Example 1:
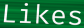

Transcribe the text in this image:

Likes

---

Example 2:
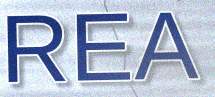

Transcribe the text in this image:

REA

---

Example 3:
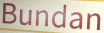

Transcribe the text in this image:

Bundan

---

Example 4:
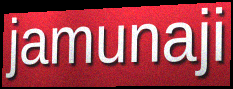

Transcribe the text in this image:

jamunaji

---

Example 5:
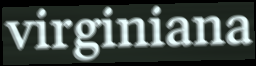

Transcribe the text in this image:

virginiana